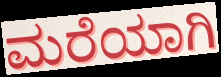
ಮರೆಯಾಗಿ